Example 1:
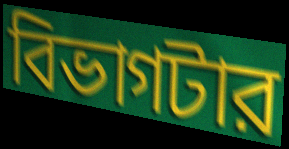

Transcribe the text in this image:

বিভাগটার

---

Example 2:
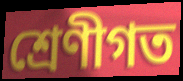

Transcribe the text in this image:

শ্রেণীগত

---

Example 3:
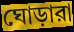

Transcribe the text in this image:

ঘোড়ারা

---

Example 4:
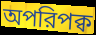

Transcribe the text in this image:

অপরিপক্ব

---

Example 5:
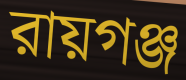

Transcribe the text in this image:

রায়গঞ্জ